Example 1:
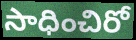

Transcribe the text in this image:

సాధించిరో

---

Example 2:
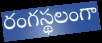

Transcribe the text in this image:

రంగస్థలంగా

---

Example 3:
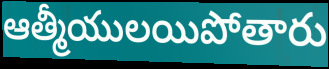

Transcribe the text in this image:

ఆత్మీయులయిపోతారు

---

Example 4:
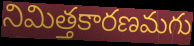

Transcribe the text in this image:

నిమిత్తకారణమగు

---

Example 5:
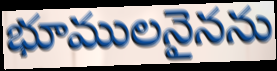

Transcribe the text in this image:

భూములనైనను